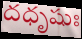
దధృషుః